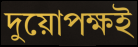
দুয়োপক্ষই